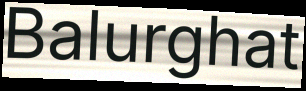
Balurghat